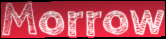
Morrow